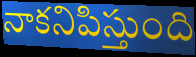
నాకనిపిస్తుంది